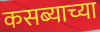
कसब्याच्या